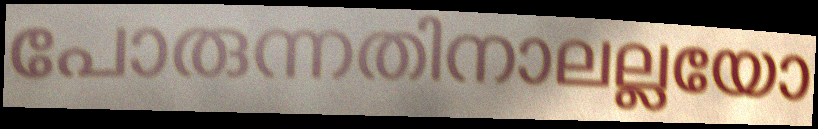
പോരുന്നതിനാലല്ലയോ